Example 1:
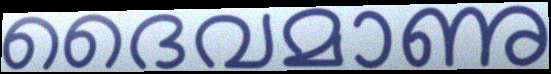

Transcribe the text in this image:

ദൈവമാണു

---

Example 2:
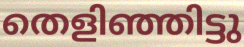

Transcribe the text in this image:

തെളിഞ്ഞിട്ടു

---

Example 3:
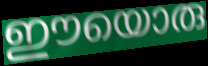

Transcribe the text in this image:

ഈയൊരു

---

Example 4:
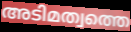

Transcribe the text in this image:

അടിമത്വത്തെ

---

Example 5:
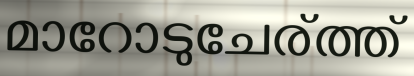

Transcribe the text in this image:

മാറോടുചേര്ത്ത്